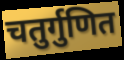
चतुर्गुणित